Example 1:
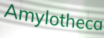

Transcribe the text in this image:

Amylotheca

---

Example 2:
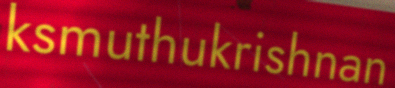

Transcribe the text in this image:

ksmuthukrishnan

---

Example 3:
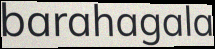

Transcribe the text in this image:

barahagala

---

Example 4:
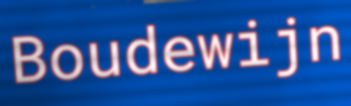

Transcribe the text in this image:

Boudewijn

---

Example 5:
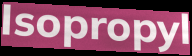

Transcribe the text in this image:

Isopropyl